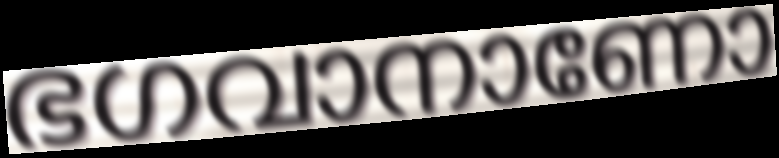
ഭഗവാനാണോ